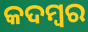
କଦମ୍ବର